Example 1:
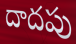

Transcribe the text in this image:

దాదపు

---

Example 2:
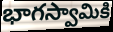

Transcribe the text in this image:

భాగస్వామికి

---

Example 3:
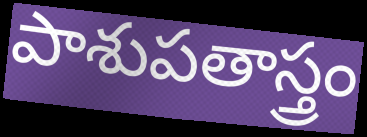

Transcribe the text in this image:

పాశుపతాస్త్రం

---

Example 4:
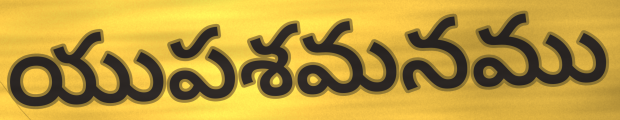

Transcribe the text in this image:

యుపశమనము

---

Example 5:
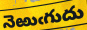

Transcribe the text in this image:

నెఱుఁగుదు